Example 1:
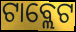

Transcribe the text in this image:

ଟାବ୍ଲେଟ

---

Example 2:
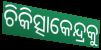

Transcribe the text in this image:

ଚିକିତ୍ସାକେନ୍ଦ୍ରକୁ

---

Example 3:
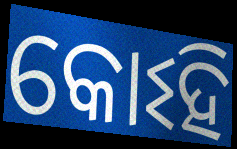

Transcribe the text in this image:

କୋଽହି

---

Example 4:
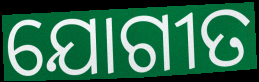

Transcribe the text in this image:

ଯୋଗୀତ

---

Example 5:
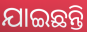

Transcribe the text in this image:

ଯାଇଛନ୍ତି